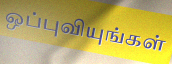
ஒப்புவியுங்கள்